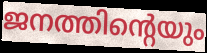
ജനത്തിന്റെയും